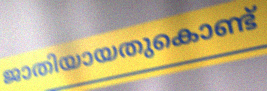
ജാതിയായതുകൊണ്ട്